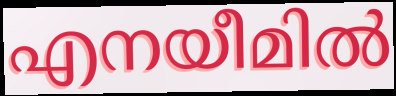
എനയീമിൽ